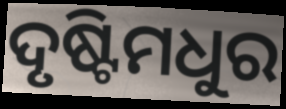
ଦୃଷ୍ଟିମଧୁର